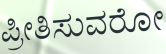
ಪ್ರೀತಿಸುವರೋ